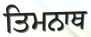
ਤਿਮਨਾਥ